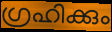
ഗ്രഹിക്കും